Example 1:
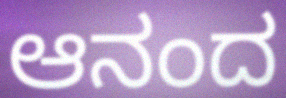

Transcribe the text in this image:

ಆನಂದ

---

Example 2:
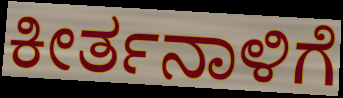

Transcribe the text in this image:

ಕೀರ್ತನಾಳಿಗೆ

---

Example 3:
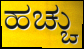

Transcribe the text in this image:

ಹಚ್ಚು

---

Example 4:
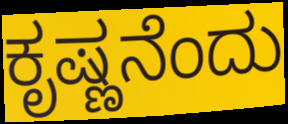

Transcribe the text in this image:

ಕೃಷ್ಣನೆಂದು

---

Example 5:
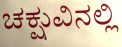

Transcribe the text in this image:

ಚಕ್ಷುವಿನಲ್ಲಿ